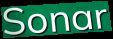
Sonar